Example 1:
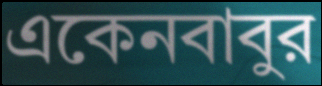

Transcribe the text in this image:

একেনবাবুর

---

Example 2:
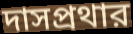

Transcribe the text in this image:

দাসপ্রথার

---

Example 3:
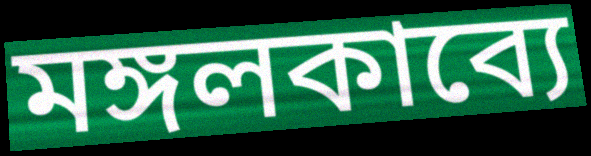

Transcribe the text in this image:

মঙ্গলকাব্যে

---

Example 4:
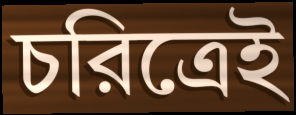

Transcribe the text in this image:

চরিত্রেই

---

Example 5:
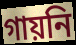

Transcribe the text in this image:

গায়নি